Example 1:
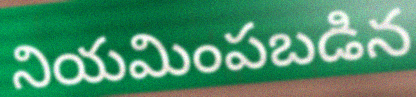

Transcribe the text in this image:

నియమింపబడిన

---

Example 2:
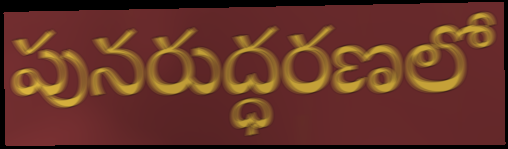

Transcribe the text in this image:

పునరుద్ధరణలో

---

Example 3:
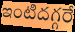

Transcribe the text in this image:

ఇంటిదగ్గరే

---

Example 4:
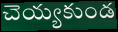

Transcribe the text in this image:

చెయ్యకుండ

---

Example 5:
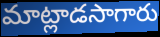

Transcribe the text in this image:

మాట్లాడసాగారు